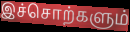
இச்சொற்களும்